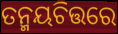
ତନ୍ମୟଚିତ୍ତରେ